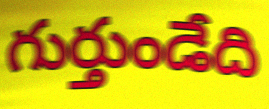
గుర్తుండేది